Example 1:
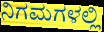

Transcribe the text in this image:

ನಿಗಮಗಳಲ್ಲಿ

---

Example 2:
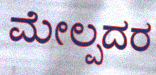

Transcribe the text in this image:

ಮೇಲ್ಪದರ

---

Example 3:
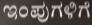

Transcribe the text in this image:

ಇಂಪುಗಳಿಗೆ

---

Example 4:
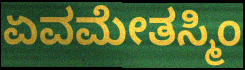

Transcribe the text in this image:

ಏವಮೇತಸ್ಮಿಂ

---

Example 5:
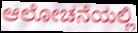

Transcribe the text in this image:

ಆಲೋಚನೆಯಲ್ಲಿ